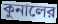
কুনালের